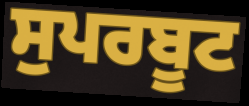
ਸੁਪਰਬੂਟ